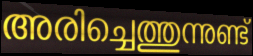
അരിച്ചെത്തുന്നുണ്ട്